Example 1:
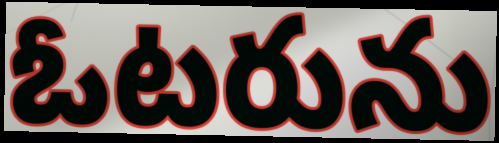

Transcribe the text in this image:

ఓటరును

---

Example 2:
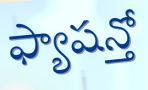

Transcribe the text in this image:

ఫ్యాషన్తో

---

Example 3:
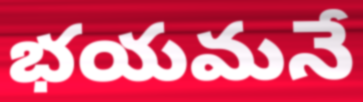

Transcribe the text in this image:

భయమనే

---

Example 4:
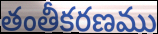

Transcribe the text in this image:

తంతీకరణము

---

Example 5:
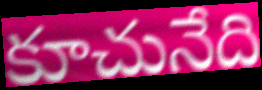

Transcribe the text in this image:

కూచునేది